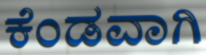
ಕೆಂಡವಾಗಿ